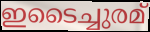
ഇടൈച്ചുരമ്